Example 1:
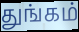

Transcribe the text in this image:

துங்கம்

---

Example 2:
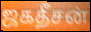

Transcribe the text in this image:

ஜகதீசன்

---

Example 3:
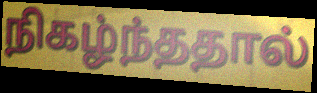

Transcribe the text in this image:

நிகழ்ந்ததால்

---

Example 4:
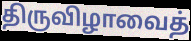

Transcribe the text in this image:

திருவிழாவைத்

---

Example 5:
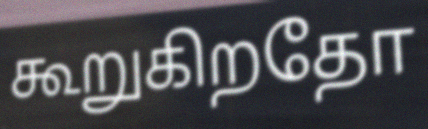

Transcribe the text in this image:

கூறுகிறதோ